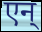
एन्